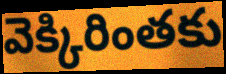
వెక్కిరింతకు